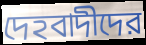
দেহবাদীদের